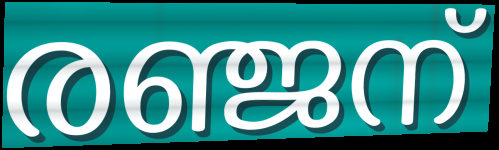
രഞ്ജന്